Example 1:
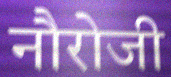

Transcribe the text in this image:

नौरोजी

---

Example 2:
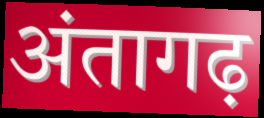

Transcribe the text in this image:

अंतागढ़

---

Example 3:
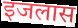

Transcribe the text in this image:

इजलास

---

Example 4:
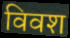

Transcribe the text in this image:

विवश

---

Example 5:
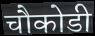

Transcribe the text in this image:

चौकोडी